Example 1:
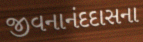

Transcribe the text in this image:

જીવનાનંદદાસના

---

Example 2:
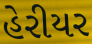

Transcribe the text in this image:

હેરીયર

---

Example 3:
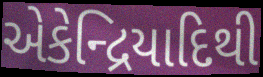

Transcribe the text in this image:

એકેન્દ્રિયાદિથી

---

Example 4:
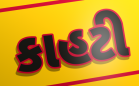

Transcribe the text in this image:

કાહટી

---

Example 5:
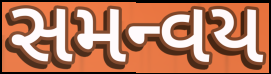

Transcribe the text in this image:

સમન્વય